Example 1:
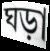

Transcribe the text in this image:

ঘড়া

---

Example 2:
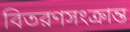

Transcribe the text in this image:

বিতরণসংক্রান্ত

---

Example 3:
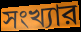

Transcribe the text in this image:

সংখ্যার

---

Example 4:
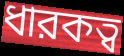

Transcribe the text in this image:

ধারকত্ব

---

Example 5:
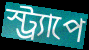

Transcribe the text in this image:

স্ট্র্যাপে